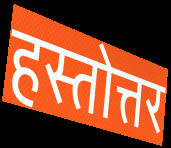
हस्तोत्तर